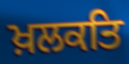
ਖ਼ਲਕਤਿ